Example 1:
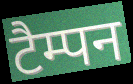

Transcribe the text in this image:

टैम्पन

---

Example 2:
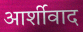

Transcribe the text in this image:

आर्शीवाद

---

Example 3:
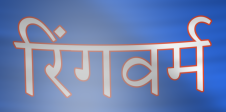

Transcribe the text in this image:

रिंगवर्म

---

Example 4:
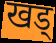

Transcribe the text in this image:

खड्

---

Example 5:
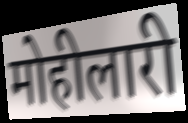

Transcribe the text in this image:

मोहीलारी